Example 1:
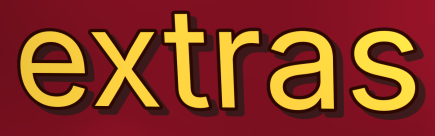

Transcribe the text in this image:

extras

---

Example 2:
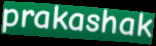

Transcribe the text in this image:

prakashak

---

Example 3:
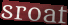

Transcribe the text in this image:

sroat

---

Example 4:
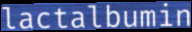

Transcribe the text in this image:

lactalbumin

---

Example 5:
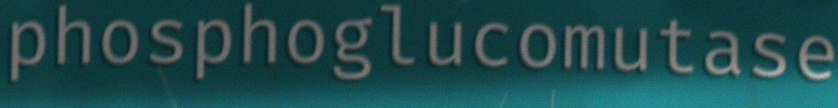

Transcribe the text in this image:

phosphoglucomutase